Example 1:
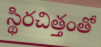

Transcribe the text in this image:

స్థిరచిత్తంతో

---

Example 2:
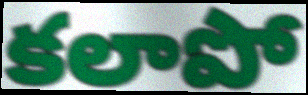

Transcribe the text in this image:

కలాపో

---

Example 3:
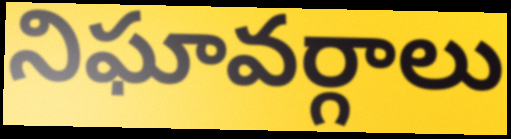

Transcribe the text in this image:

నిఘావర్గాలు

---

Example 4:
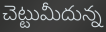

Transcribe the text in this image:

చెట్టుమీదున్న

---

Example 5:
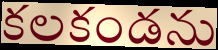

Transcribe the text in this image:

కలకండను